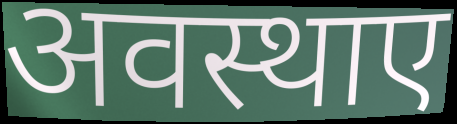
अवस्थाए